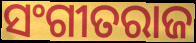
ସଂଗୀତରାଜ